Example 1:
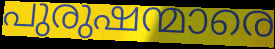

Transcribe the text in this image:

പുരുഷന്മാരെ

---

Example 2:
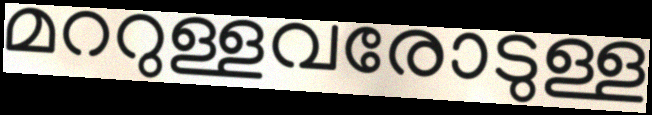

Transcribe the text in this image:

മററുള്ളവരോടുള്ള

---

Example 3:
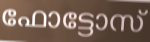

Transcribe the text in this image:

ഫോട്ടോസ്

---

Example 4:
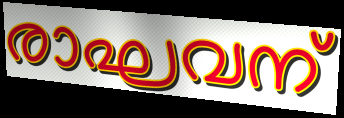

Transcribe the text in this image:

രാഘവന്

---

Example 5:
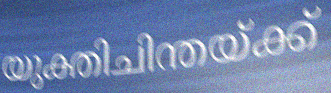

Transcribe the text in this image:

യുക്തിചിന്തയ്ക്ക്